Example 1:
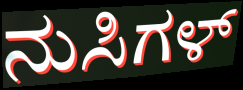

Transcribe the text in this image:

ನುಸಿಗಳ್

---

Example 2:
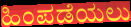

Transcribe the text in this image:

ಹಿಂಪಡೆಯಲು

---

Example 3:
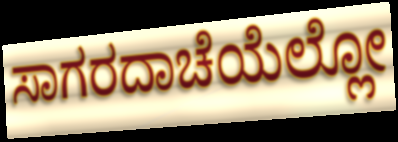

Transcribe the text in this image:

ಸಾಗರದಾಚೆಯೆಲ್ಲೋ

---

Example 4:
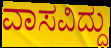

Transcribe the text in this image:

ವಾಸವಿದ್ದು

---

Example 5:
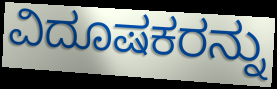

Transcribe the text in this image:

ವಿದೂಷಕರನ್ನು